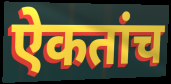
ऐकतांच